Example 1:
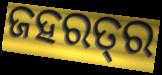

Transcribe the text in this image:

ଜହରତ୍‍ର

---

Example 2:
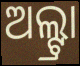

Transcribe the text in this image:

ଅଲ୍ଟ୍ରା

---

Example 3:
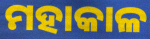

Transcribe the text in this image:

ମହାକାଳ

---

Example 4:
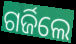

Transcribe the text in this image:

ଗର୍ଜିଲେ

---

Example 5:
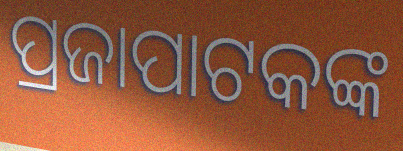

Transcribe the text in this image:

ପ୍ରଜାପାଟକଙ୍କ